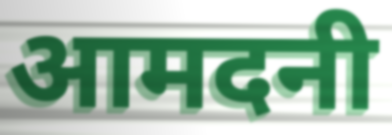
आमदनी